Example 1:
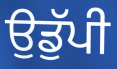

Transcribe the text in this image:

ਉਡੁੱਪੀ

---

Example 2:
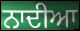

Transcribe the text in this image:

ਨਾਦੀਆ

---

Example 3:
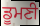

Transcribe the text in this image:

ਡੂਮਣੀ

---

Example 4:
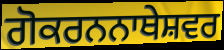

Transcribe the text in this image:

ਗੋਕਰਨਨਾਥੇਸ਼ਵਰ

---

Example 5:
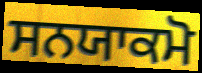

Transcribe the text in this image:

ਸਨਯਾਕਮੋ